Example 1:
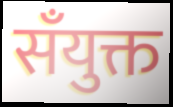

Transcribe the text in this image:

सँयुक्त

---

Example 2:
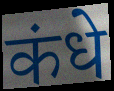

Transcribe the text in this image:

कंधे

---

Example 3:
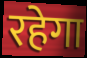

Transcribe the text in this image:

रहेगा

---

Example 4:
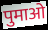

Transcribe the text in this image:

पुमाओ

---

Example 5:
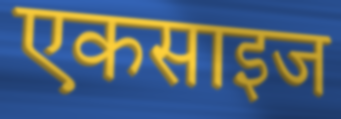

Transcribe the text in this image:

एकसाइज